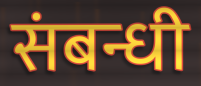
संबन्‍धी